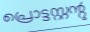
പ്രൊട്ടസ്റ്റന്റു